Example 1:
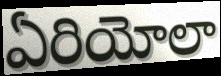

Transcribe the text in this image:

ఏరియోలా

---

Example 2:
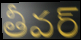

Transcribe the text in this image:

తీవర్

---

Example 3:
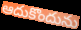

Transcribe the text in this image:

ఆదుకొందును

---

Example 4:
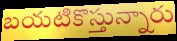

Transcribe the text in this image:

బయటికొస్తున్నారు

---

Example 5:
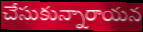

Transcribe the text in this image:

చేసుకున్నారాయన